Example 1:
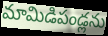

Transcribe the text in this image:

మామిడిపండ్లను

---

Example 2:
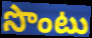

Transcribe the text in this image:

సొంటు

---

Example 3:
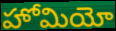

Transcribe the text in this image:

హోమియో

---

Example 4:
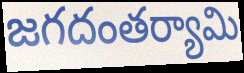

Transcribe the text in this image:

జగదంతర్యామి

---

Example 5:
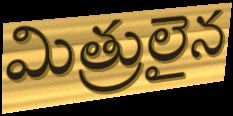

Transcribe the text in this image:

మిత్రులైన